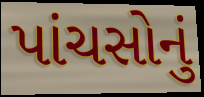
પાંચસોનું